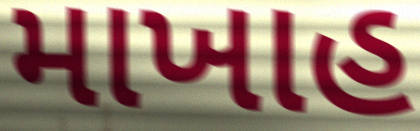
માખાહ